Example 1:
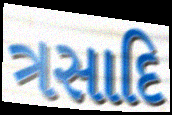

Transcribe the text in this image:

ત્રસાદિ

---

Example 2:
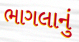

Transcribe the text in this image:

ભાગલાનું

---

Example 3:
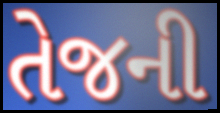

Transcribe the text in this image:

તેજની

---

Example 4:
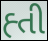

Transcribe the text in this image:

હ્તી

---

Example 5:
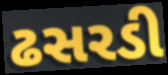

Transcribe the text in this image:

ઢસરડી